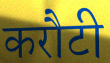
करौटी